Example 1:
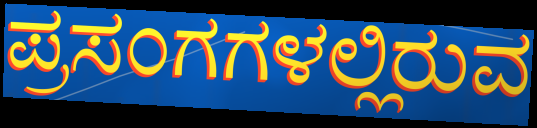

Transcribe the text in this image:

ಪ್ರಸಂಗಗಳಲ್ಲಿರುವ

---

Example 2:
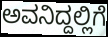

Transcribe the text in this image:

ಅವನಿದ್ದಲ್ಲಿಗೆ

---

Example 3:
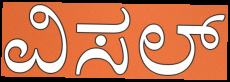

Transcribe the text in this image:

ವಿಸಲ್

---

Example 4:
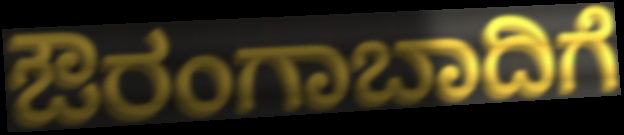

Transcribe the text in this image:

ಔರಂಗಾಬಾದಿಗೆ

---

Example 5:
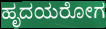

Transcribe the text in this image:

ಹೃದಯರೋಗ